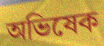
অভিষেক